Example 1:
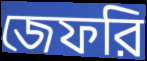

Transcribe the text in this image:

জেফরি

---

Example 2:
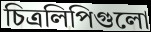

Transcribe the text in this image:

চিত্রলিপিগুলো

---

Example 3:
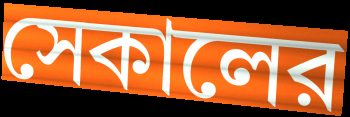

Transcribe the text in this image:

সেকালের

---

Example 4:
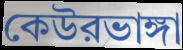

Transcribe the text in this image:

কেউরভাঙ্গা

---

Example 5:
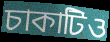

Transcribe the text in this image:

চাকাটিও